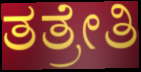
ತತ್ರೇತಿ